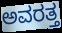
ಅವರತ್ತ